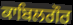
ਕਾਬਿਲਗੌਰ